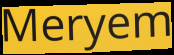
Meryem